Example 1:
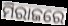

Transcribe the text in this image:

ମିରାଜରେ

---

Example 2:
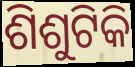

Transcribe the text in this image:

ଶିଶୁଟିକି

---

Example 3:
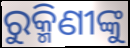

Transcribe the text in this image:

ରୁକ୍ମିଣୀଙ୍କୁ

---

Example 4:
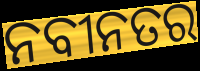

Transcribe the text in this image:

ନବୀନତର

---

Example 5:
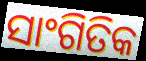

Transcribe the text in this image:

ସାଂଗିତିକ